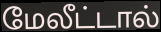
மேலீட்டால்